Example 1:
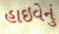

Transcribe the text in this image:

હાઇવેનું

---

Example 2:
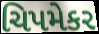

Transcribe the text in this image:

ચિપમેકર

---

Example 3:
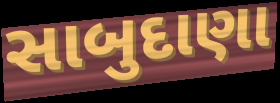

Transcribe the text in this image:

સાબુદાણા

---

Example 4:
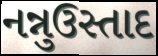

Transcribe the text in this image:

નન્નુઉસ્તાદ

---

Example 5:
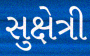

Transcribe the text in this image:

સુક્ષેત્રી